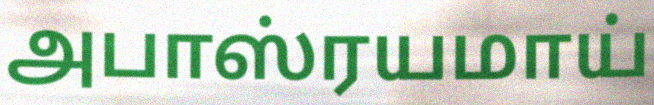
அபாஸ்ரயமாய்